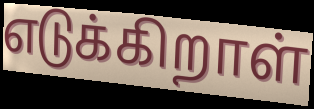
எடுக்கிறாள்